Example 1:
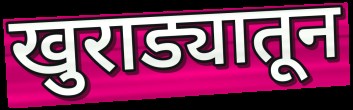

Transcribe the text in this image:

खुराड्यातून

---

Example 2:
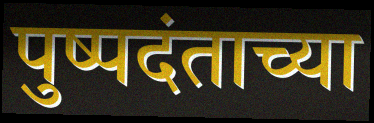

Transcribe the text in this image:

पुष्पदंताच्या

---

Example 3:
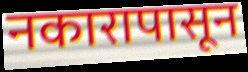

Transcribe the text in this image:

नकारापासून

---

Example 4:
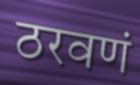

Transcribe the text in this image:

ठरवणं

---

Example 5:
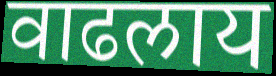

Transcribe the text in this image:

वाढलाय